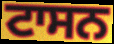
ਟਾਸਨ